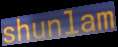
shunlam